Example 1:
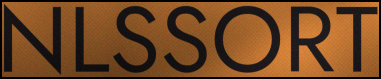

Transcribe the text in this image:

NLSSORT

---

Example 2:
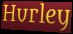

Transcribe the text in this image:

Hurley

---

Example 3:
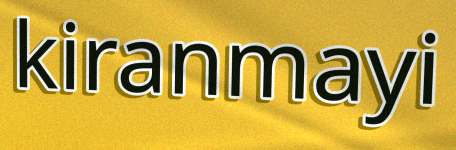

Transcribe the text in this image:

kiranmayi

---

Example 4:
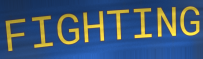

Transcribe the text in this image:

FIGHTING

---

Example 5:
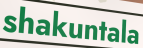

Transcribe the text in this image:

shakuntala